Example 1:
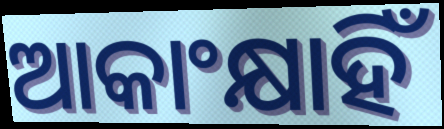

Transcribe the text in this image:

ଆକାଂକ୍ଷାହିଁ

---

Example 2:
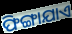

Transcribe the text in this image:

ଫିଙ୍ଗାଯାଏ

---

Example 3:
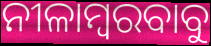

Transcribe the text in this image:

ନୀଳାମ୍ବରବାବୁ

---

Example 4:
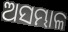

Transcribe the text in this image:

ଅସମ୍ଭାଳ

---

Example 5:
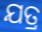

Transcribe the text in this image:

ଯତ୍ର